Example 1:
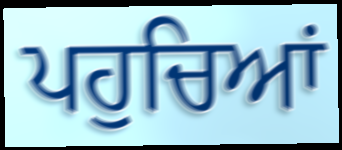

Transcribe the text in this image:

ਪਹੁਚਿਆਂ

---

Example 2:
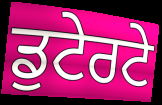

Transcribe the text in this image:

ਡੁਟੇਰਟੇ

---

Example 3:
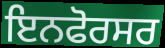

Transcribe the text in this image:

ਇਨਫੋਰਸਰ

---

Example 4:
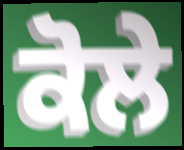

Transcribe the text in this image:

ਕੋਲੇ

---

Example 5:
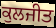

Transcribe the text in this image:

ਕੁਲਜੀਤ